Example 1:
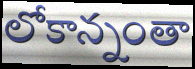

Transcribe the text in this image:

లోకాన్నంతా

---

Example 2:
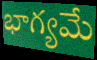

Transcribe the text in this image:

భాగ్యమే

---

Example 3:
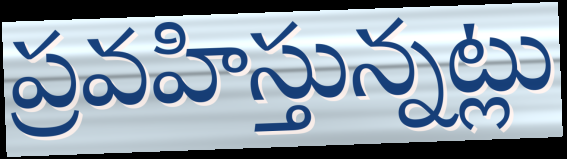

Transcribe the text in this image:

ప్రవహిస్తున్నట్లు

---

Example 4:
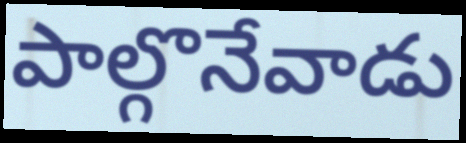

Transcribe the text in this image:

పాల్గొనేవాడు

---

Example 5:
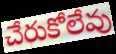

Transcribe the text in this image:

చేరుకోలేవు